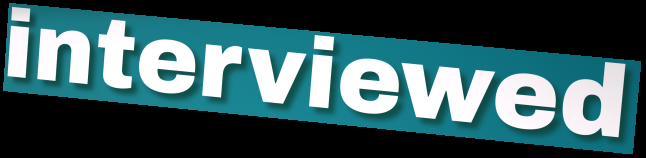
interviewed